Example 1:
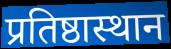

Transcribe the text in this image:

प्रतिष्ठास्थान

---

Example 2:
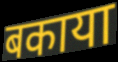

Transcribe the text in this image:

बकाया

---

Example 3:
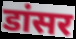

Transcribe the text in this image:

डांसर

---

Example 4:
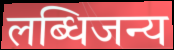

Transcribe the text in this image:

लब्धिजन्य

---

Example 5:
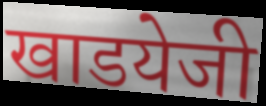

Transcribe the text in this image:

खाडयेजी